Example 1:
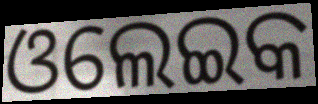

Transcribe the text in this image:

ଓଲେଇକ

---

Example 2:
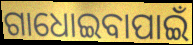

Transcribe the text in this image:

ଗାଧୋଇବାପାଇଁ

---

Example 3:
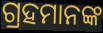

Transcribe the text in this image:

ଗ୍ରହମାନଙ୍କ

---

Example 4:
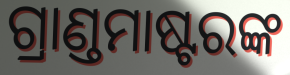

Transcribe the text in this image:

ଗ୍ରାଣ୍ଡମାଷ୍ଟରଙ୍କ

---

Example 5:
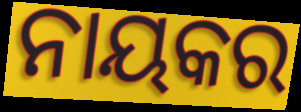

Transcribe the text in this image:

ନାୟକର